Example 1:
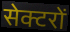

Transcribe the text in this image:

सेक्टरों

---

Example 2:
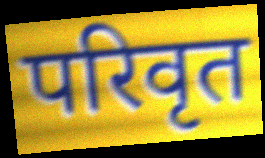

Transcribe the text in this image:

परिवृत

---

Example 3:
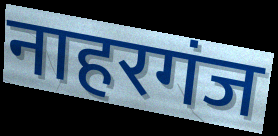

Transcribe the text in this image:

नाहरगंज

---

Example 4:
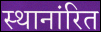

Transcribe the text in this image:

स्थानांरित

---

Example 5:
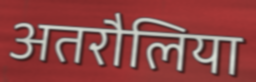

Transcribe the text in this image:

अतरौलिया